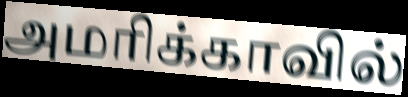
அமரிக்காவில்